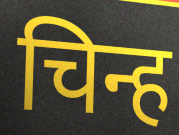
चिन्ह